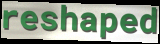
reshaped